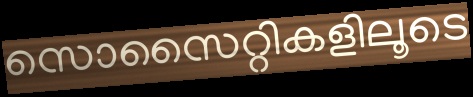
സൊസൈറ്റികളിലൂടെ